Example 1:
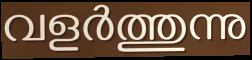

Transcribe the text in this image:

വളർത്തുന്നു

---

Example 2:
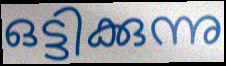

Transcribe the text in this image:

ഒട്ടിക്കുന്നു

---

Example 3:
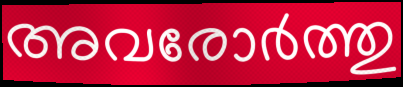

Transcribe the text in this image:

അവരോർത്തു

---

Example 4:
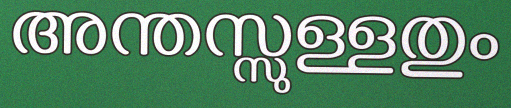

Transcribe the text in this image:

അന്തസ്സുള്ളതും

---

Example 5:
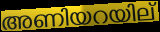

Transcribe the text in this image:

അണിയറയില്